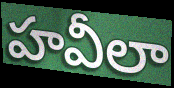
హవీలా